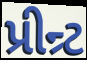
પ્રીન્ર્ટ